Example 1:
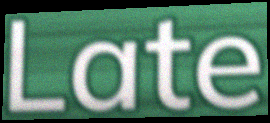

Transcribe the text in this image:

Late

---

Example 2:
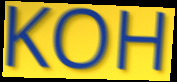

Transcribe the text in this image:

KOH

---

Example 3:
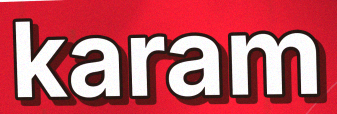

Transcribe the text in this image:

karam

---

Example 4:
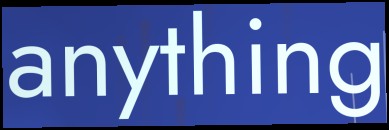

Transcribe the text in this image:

anything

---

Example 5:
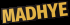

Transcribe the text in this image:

MADHYE